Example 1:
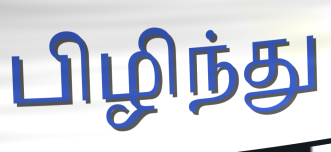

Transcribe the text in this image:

பிழிந்து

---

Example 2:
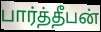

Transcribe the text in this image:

பார்த்தீபன்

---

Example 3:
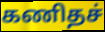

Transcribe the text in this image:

கணிதச்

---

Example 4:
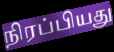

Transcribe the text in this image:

நிரப்பியது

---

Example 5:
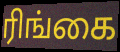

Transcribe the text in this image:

ரிங்கை